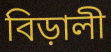
বিড়ালী